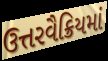
ઉત્તરવૈક્રિયમાં